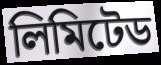
লিমিটেড